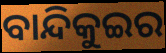
ବାନ୍ଦିକୁଇର